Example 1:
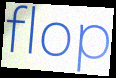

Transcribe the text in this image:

flop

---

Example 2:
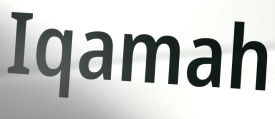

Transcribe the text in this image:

Iqamah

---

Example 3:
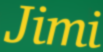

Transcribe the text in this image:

Jimi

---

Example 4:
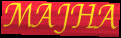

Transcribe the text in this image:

MAJHA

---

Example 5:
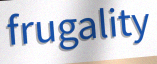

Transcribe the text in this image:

frugality